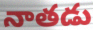
నాతడు